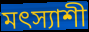
মৎস্যাশী